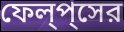
ফেল্‌প্‌সের